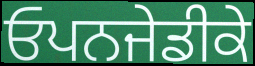
ਓਪਨਜੇਡੀਕੇ